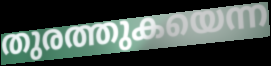
തുരത്തുകയെന്ന